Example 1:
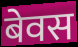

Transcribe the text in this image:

बेवस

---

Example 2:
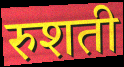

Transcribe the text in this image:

रुशती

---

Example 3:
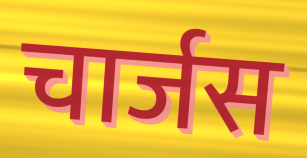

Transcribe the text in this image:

चार्जस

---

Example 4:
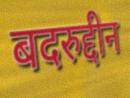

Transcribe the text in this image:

बदरुद्दीन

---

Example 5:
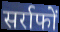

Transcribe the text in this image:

सर्राफों